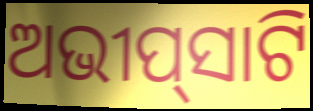
ଅଭୀପ୍‌ସାଟି